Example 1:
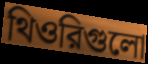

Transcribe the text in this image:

থিওরিগুলো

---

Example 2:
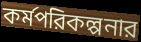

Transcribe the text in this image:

কর্মপরিকল্পনার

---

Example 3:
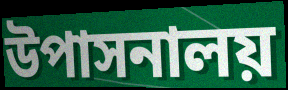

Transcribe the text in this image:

উপাসনালয়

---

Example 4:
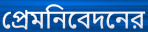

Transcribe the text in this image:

প্রেমনিবেদনের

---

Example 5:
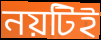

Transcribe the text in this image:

নয়টিই